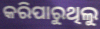
କରିପାରୁଥିଲୁ